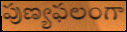
పుణ్యఫలంగా